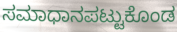
ಸಮಾಧಾನಪಟ್ಟುಕೊಂಡ